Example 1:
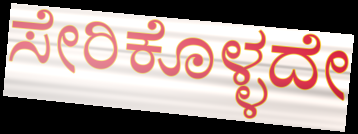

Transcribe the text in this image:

ಸೇರಿಕೊಳ್ಳದೇ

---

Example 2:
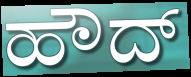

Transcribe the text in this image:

ಹೌದ್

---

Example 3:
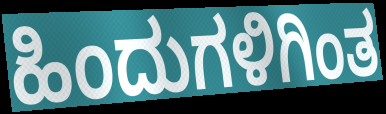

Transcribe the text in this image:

ಹಿಂದುಗಳಿಗಿಂತ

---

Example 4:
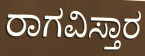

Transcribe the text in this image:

ರಾಗವಿಸ್ತಾರ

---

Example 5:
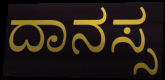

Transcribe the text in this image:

ದಾನಸ್ಸ